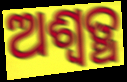
ଅଶ୍ଵତ୍ଥ